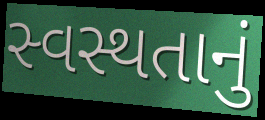
સ્વસ્થતાનું